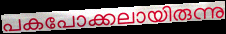
പകപോക്കലായിരുന്നു